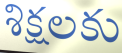
శిక్షలకు